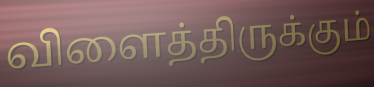
விளைத்திருக்கும்